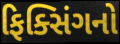
ફિક્સિંગનો